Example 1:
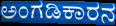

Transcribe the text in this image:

ಅಂಗಡಿಕಾರನ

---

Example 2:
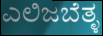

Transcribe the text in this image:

ಎಲಿಜಬೆತ್ಳ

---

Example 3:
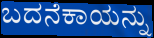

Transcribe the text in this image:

ಬದನೆಕಾಯನ್ನು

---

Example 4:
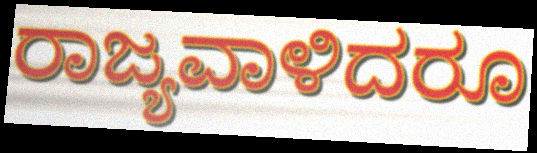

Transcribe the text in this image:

ರಾಜ್ಯವಾಳಿದರೂ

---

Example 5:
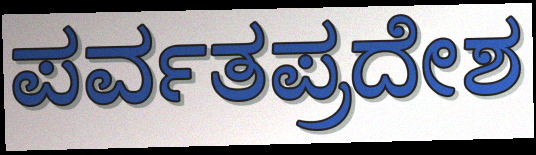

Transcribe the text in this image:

ಪರ್ವತಪ್ರದೇಶ